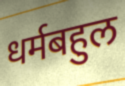
धर्मबहुल